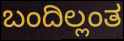
ಬಂದಿಲ್ಲಂತ